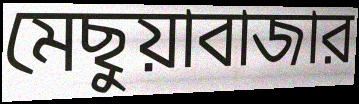
মেছুয়াবাজার